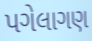
પગેલાગણ